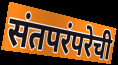
संतपरंपरेची